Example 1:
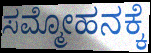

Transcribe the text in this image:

ಸಮ್ಮೋಹನಕ್ಕೆ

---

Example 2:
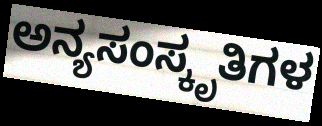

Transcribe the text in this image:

ಅನ್ಯಸಂಸ್ಕೃತಿಗಳ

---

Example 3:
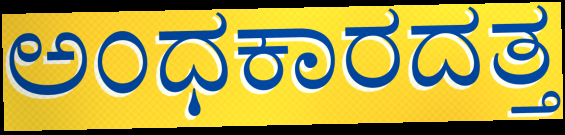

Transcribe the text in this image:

ಅಂಧಕಾರದತ್ತ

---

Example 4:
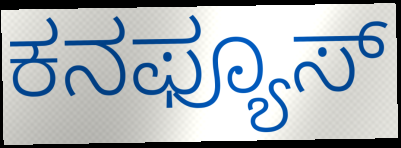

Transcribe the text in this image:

ಕನಫ್ಯೂಸ್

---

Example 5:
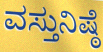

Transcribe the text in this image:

ವಸ್ತುನಿಷ್ಠೆ